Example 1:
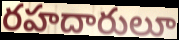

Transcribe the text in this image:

రహదారులూ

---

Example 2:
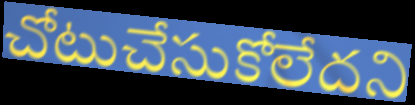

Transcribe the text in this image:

చోటుచేసుకోలేదని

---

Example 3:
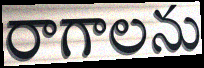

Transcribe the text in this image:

రాగాలను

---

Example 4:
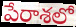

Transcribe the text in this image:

పేరాశలో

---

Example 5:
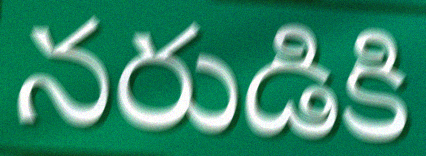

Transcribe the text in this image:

నరుడికి